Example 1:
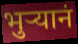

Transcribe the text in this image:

भुऱ्यानं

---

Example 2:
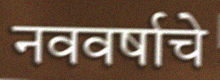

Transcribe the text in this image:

नववर्षाचे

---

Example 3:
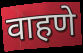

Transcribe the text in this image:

वाहणे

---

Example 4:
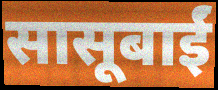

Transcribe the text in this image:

सासूबाईं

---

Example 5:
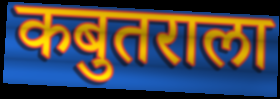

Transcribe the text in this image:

कबुतराला